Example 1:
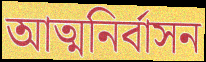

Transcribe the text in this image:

আত্মনির্বাসন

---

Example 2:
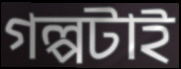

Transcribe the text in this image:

গল্পটাই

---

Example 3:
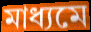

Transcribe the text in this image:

মাধ্যমে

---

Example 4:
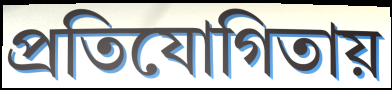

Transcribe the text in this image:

প্রতিযোগিতায়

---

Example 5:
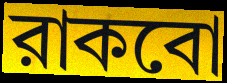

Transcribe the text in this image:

রাকবো